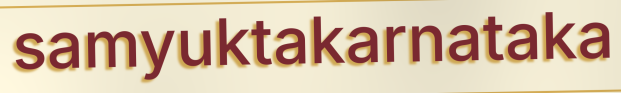
samyuktakarnataka